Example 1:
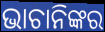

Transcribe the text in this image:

ଭାଚାନିଙ୍କର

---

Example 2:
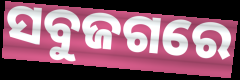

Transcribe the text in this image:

ସବୁଜଗରେ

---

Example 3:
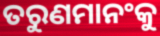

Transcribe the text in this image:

ତରୁଣମାନଂକୁ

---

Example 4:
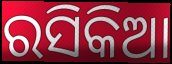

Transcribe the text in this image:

ରସିକିଆ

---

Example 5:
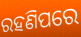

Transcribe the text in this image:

ରହଣିପରେ